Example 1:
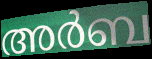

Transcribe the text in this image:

അർബ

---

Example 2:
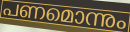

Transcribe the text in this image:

പണമൊന്നും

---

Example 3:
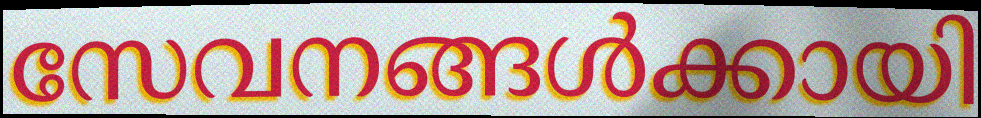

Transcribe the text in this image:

സേവനങ്ങൾക്കായി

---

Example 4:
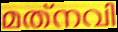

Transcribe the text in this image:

മത്‌നവി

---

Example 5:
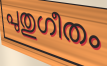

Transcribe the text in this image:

പുതുഗീതം